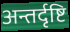
अन्तर्दृष्टि